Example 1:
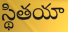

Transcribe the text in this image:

స్థితయా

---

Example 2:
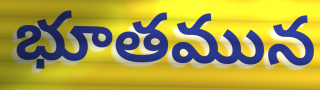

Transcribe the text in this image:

భూతమున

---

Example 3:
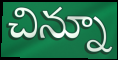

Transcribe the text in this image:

చిన్నూ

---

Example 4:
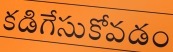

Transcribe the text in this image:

కడిగేసుకోవడం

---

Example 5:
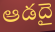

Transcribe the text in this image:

ఆడదై